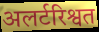
अलर्टरिश्वत